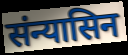
संन्यासिन